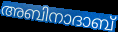
അബിനാദാബ്